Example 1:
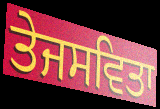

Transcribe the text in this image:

ਤੇਜਸਵਿਤਾ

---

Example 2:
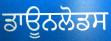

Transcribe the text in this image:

ਡਾਊਨਲੋਡਸ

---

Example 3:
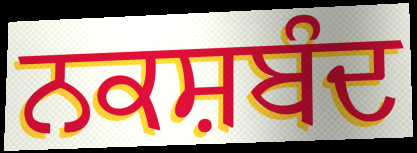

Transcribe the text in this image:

ਨਕਸ਼ਬੰਦ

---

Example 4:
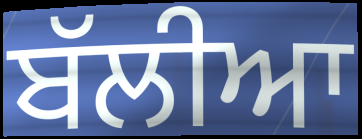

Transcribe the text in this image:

ਬੱਲੀਆ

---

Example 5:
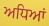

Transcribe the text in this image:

ਅਧਿਆਂ